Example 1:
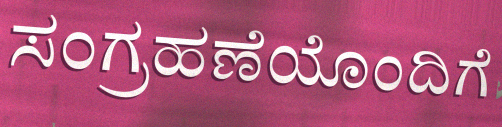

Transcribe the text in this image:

ಸಂಗ್ರಹಣೆಯೊಂದಿಗೆ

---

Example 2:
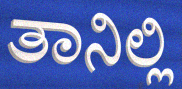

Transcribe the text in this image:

ತಾನಿಲ್ಲಿ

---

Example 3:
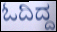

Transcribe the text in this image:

ಓದಿದ್ದ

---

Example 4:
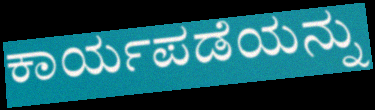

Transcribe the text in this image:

ಕಾರ್ಯಪಡೆಯನ್ನು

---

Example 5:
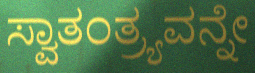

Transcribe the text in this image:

ಸ್ವಾತಂತ್ರ್ಯವನ್ನೇ